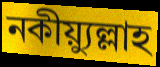
নকীয়্যুল্লাহ